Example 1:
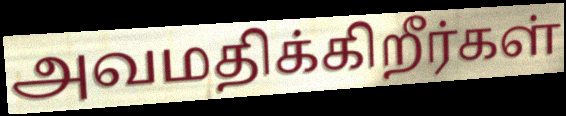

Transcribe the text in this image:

அவமதிக்கிறீர்கள்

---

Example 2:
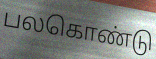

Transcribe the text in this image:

பலகொண்டு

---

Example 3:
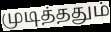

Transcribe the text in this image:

முடித்ததும்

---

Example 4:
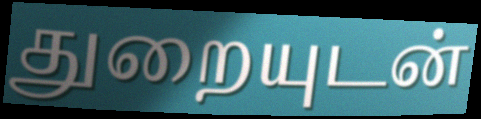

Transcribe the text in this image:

துறையுடன்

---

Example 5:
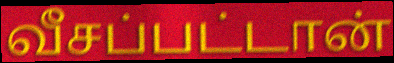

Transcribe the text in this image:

வீசப்பட்டான்